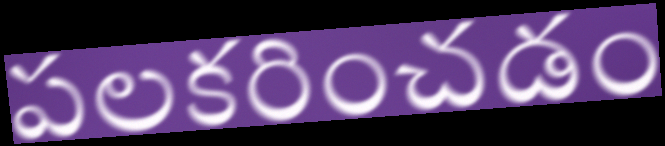
పలకరించడం